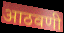
आठवणी